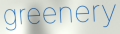
greenery